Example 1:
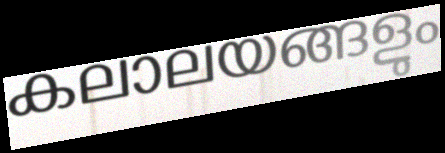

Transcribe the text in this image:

കലാലയങ്ങളും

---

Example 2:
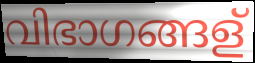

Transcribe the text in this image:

വിഭാഗങ്ങള്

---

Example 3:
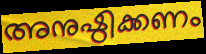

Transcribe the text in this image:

അനുഷ്ഠിക്കണം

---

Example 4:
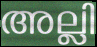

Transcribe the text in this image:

അല്ലി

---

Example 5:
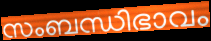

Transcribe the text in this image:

സംബന്ധിഭാവം